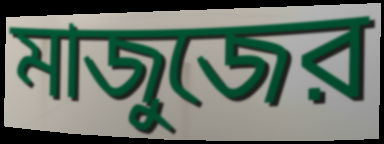
মাজুজের